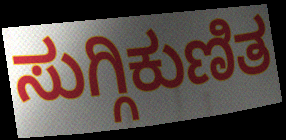
ಸುಗ್ಗಿಕುಣಿತ